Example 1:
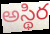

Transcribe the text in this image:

అస్థిర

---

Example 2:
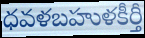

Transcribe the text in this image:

ధవళబహుళకీర్తీ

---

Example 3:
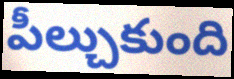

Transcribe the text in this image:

పీల్చుకుంది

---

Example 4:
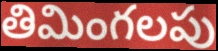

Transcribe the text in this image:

తిమింగలపు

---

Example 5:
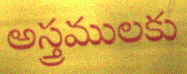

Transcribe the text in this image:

అస్త్రములకు